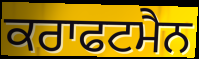
ਕਰਾਫਟਮੈਨ